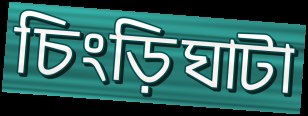
চিংড়িঘাটা